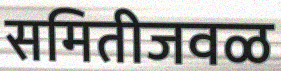
समितीजवळ